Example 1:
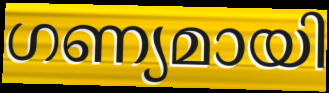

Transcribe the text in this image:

ഗണ്യമായി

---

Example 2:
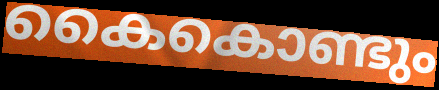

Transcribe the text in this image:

കൈകൊണ്ടും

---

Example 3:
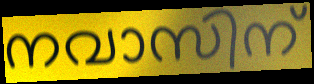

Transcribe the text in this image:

നവാസിന്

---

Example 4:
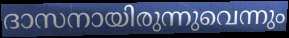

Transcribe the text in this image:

ദാസനായിരുന്നുവെന്നും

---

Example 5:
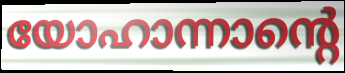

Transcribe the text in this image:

യോഹാന്നാന്റെ